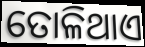
ତୋଳିଥାଏ